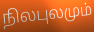
நிலபுலமும்